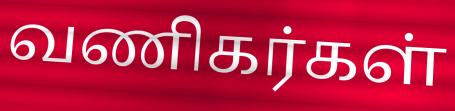
வணிகர்கள்